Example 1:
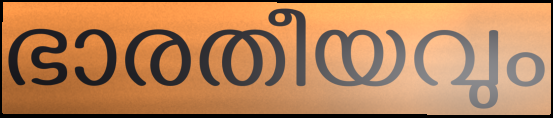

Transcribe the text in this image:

ഭാരതീയവും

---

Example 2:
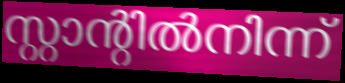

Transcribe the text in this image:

സ്റ്റാന്റിൽനിന്ന്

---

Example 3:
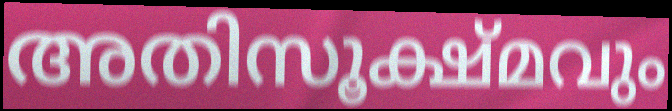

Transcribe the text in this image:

അതിസൂക്ഷ്മവും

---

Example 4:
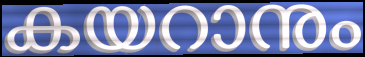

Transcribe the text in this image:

കയറാനും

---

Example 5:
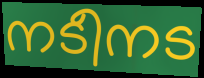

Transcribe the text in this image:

നടീനട